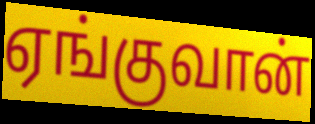
ஏங்குவான்